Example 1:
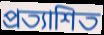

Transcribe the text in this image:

প্ৰত্যাশিত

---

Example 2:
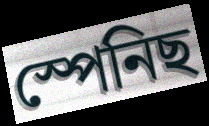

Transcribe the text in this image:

স্পেনিছ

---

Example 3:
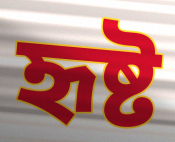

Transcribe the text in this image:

হৃষ্ট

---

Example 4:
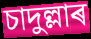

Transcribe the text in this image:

চাদুল্লাৰ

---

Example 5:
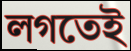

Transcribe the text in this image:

লগতেই